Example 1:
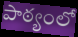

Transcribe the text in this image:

పాఠ్యంలో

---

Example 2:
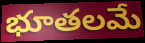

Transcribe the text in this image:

భూతలమే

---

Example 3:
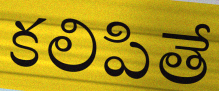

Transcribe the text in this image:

కలిపితే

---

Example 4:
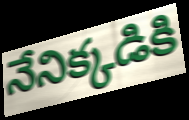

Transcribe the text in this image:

నేనిక్కడికి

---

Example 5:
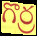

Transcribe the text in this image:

గొర్ర